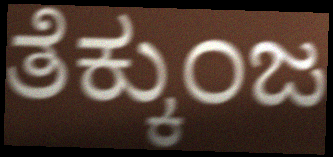
ತೆಕ್ಕುಂಜ